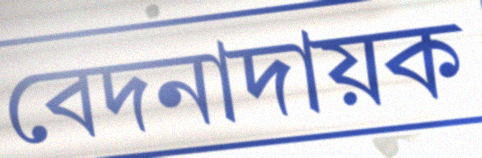
বেদনাদায়ক